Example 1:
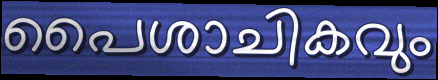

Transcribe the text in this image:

പൈശാചികവും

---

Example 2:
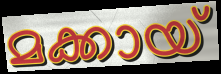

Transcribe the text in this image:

മക്കായ്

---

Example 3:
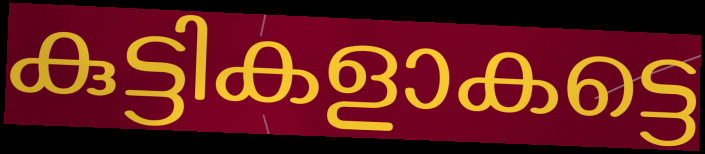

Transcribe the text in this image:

കുട്ടികളാകട്ടെ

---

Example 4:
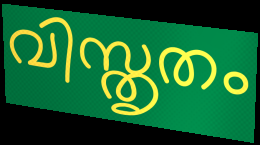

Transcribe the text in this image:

വിസ്തൃതം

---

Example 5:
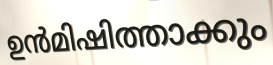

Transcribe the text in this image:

ഉൻമിഷിത്താക്കും